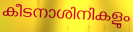
കീടനാശിനികളും